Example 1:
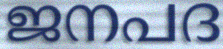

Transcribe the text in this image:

ജനപദ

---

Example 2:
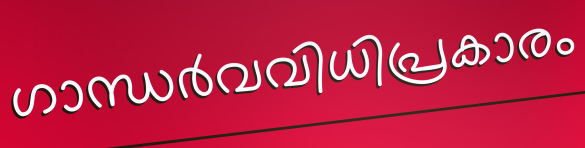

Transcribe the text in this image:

ഗാന്ധർവവിധിപ്രകാരം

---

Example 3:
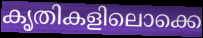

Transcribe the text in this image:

കൃതികളിലൊക്കെ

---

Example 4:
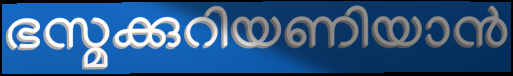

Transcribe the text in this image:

ഭസ്മക്കുറിയണിയാൻ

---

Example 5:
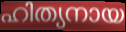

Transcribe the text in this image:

ഹിത്യനായ